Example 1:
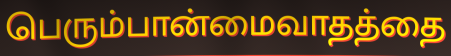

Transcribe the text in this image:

பெரும்பான்மைவாதத்தை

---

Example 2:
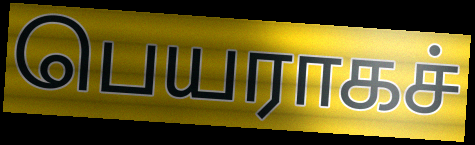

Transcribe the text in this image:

பெயராகச்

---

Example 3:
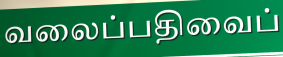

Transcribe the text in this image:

வலைப்பதிவைப்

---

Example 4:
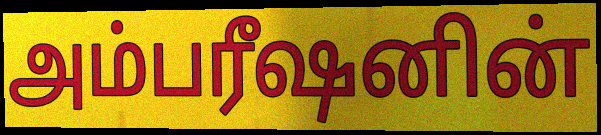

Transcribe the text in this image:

அம்பரீஷனின்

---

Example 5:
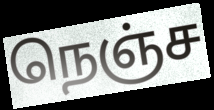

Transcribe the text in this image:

நெஞ்ச